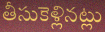
తీసుకెళ్లినట్లు